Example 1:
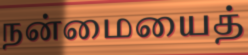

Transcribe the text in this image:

நன்மையைத்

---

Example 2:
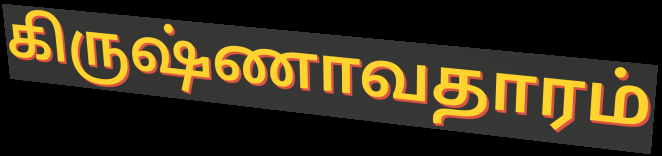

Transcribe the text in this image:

கிருஷ்ணாவதாரம்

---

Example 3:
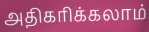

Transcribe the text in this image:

அதிகரிக்கலாம்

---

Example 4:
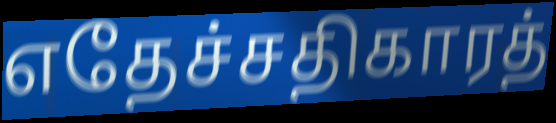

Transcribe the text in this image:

எதேச்சதிகாரத்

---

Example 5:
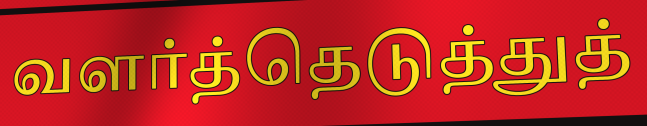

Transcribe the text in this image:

வளர்த்தெடுத்துத்